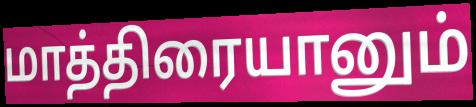
மாத்திரையானும்